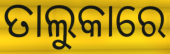
ତାଲୁକାରେ